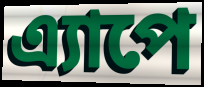
এ্যাপে